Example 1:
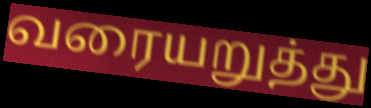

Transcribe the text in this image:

வரையறுத்து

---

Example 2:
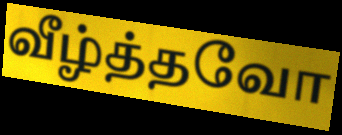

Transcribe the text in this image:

வீழ்த்தவோ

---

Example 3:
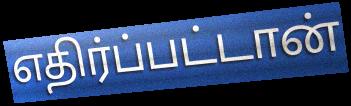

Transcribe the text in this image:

எதிர்ப்பட்டான்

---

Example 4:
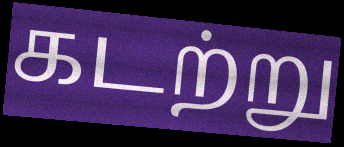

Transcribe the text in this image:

கடற்று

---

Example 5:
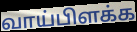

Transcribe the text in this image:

வாய்பிளக்க